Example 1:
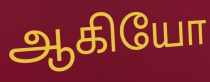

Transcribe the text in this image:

ஆகியோ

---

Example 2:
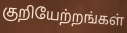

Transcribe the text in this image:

குறியேற்றங்கள்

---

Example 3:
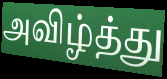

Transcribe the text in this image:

அவிழ்த்து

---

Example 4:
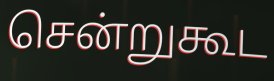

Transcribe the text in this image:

சென்றுகூட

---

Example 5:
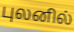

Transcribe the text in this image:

புலனில்